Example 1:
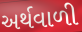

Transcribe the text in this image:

અર્થવાળી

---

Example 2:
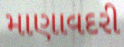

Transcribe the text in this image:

માણાવદરી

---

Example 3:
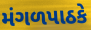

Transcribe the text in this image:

મંગળપાઠકે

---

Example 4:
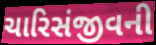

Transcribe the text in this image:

ચારિસંજીવની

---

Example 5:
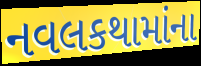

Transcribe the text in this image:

નવલકથામાંના